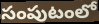
సంపుటంలో